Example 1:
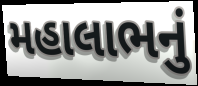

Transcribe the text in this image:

મહાલાભનું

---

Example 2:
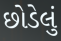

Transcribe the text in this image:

છોડેલું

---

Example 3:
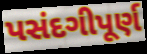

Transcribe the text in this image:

પસંદગીપૂર્ણ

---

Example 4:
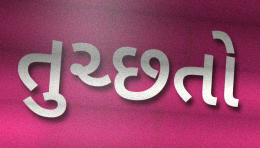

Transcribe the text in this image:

તુચ્છતો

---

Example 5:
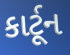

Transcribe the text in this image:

કાર્ટૂન